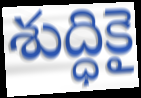
శుద్ధికై